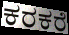
ಕರಕರೆ